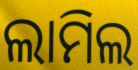
ଲାମିଲ